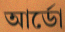
আর্ডো